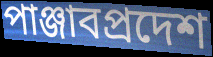
পাঞ্জাবপ্রদেশ